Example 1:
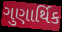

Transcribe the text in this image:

ગુણાર્થિક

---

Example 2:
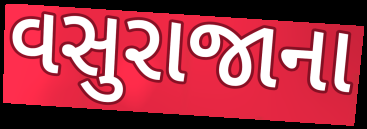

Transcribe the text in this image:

વસુરાજાના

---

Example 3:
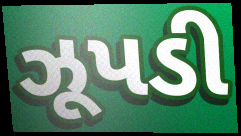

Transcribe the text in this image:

ઝૂપડી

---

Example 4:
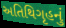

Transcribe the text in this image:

અતિથિગૃહનું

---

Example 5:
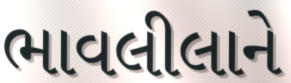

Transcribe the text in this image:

ભાવલીલાને